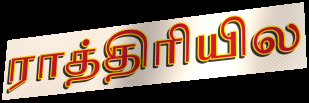
ராத்திரியில